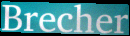
Brecher